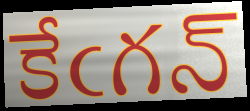
కేఁగన్